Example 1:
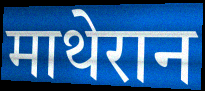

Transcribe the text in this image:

माथेरान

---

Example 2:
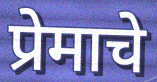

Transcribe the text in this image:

प्रेमाचे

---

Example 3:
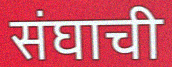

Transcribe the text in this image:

संघाची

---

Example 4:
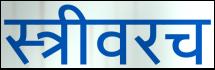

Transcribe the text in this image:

स्त्रीवरच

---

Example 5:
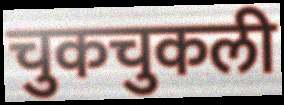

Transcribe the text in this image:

चुकचुकली